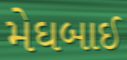
મેઘબાઈ